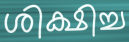
ശിക്ഷിച്ച